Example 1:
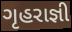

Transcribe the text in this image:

ગૃહરાજ્ઞી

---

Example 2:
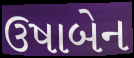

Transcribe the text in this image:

ઉષાબેન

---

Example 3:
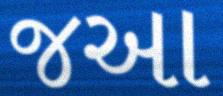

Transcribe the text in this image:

જઆ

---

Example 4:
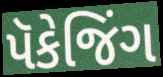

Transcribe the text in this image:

પૅકેજિંગ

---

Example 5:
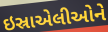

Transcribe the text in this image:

ઇસ્રાએલીઓને